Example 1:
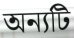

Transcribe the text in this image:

অন্যটি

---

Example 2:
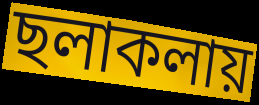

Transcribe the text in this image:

ছলাকলায়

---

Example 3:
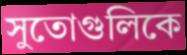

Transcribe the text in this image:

সুতোগুলিকে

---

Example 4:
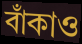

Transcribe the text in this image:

বাঁকাও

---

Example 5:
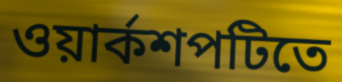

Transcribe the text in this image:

ওয়ার্কশপটিতে